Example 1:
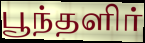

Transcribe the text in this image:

பூந்தளிர்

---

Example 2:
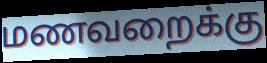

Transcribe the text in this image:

மணவறைக்கு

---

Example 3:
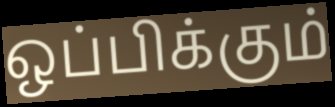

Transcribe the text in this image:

ஒப்பிக்கும்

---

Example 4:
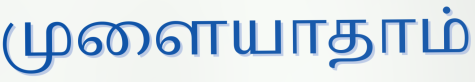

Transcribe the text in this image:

முளையாதாம்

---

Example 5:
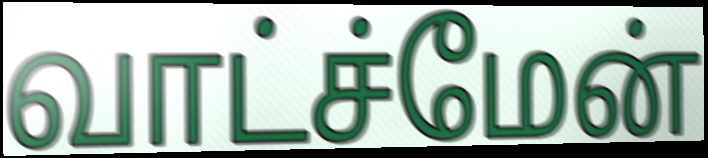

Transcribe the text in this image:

வாட்ச்மேன்